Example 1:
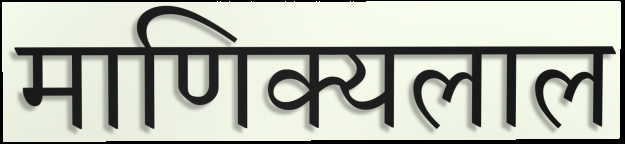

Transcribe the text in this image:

माणिक्यलाल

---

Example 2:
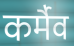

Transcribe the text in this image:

कर्मैव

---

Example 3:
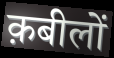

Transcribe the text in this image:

क़बीलों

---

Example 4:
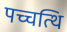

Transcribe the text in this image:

पच्चत्थि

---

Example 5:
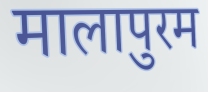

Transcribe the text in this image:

मालापुरम